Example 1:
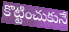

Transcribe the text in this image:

కొట్టించుకునే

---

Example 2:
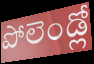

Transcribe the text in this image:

పోలెండ్లో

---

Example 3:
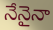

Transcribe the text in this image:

నేనైనా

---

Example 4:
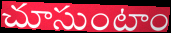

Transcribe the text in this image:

చూసుంటాం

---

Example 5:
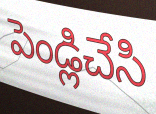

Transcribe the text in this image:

పెండ్లిచేసి